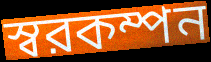
স্বরকম্পন